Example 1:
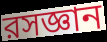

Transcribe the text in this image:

রসজ্ঞান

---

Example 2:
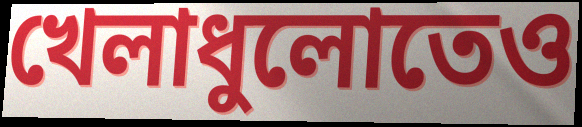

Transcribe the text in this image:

খেলাধুলোতেও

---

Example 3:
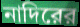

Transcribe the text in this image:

নাদিরের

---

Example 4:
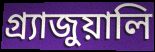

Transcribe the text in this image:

গ্র্যাজুয়ালি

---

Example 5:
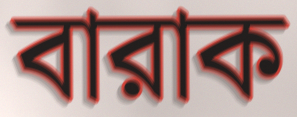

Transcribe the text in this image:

বারাক